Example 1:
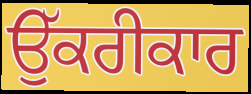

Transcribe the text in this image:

ਉੱਕਰੀਕਾਰ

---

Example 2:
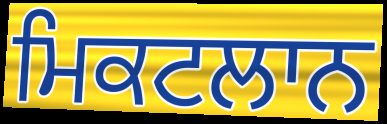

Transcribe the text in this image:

ਮਿਕਟਲਾਨ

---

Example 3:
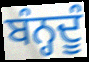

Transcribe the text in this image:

ਬੰਨ੍ਹਦੂੰ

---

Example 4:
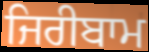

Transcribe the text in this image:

ਜਿਰੀਬਾਮ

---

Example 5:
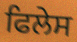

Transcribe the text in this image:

ਫਿਲੇਸ